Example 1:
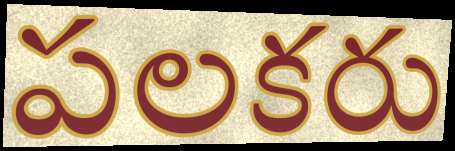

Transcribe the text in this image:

పలకరు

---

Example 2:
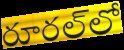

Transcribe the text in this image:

రూరల్‌లో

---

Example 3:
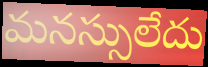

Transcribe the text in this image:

మనస్సులేదు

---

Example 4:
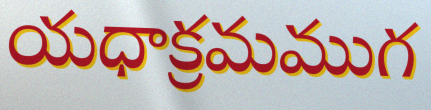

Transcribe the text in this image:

యధాక్రమముగ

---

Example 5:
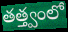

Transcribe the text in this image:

తత్త్వంలో